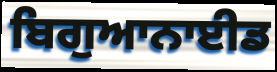
ਬਿਗੁਆਨਾਈਡ